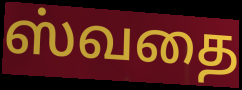
ஸ்வதை